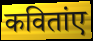
कवितांए